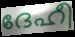
ദേഹീ